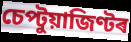
চেপ্টুয়াজিণ্টৰ